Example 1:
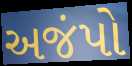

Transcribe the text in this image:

અજંપો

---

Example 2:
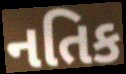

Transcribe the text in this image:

નતિક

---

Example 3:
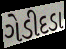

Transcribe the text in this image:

ગેડીદડા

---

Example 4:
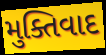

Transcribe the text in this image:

મુક્તિવાદ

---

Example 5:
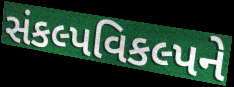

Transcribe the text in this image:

સંકલ્પવિકલ્પને